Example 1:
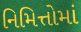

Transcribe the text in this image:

નિમિત્તોમાં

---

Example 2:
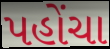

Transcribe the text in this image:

પહોંચા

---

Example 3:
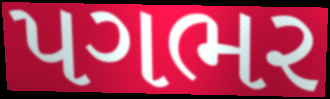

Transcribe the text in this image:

પગભર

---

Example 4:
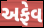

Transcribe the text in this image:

અફેવ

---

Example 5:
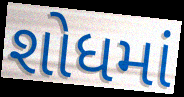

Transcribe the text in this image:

શોધમાં